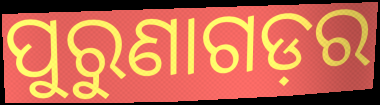
ପୁରୁଣାଗଡ଼ର